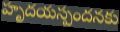
హృదయస్పందనకు